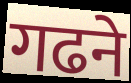
गढने